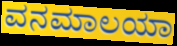
ವನಮಾಲಯಾ